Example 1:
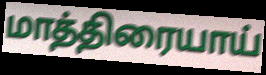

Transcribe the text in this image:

மாத்திரையாய்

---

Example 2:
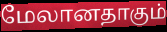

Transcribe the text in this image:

மேலானதாகும்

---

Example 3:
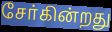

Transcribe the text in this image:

சேர்கின்றது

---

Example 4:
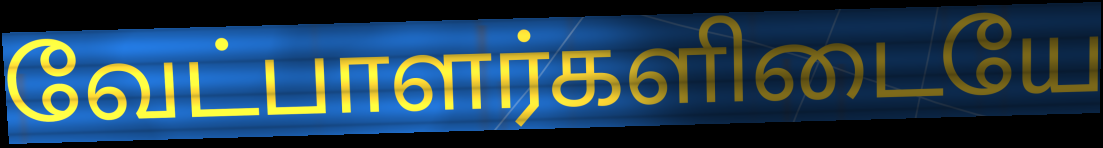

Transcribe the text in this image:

வேட்பாளர்களிடையே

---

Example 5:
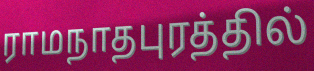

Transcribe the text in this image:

ராமநாதபுரத்தில்